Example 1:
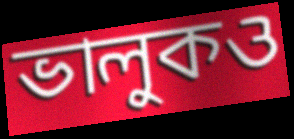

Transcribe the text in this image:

ভালুকও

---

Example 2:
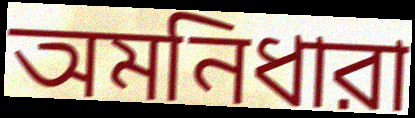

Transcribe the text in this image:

অমনিধারা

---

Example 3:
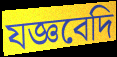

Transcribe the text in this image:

যজ্ঞবেদি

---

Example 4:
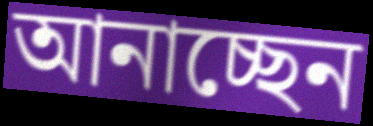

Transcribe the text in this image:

আনাচ্ছেন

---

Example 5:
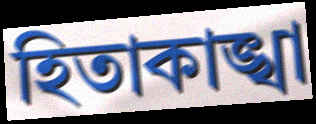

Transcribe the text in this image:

হিতাকাঙ্খা